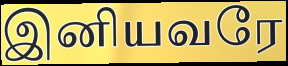
இனியவரே